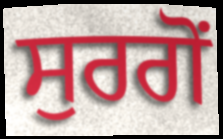
ਸੁਰਗੋਂ